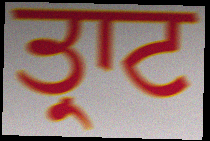
ਤ੍ਰਾਟ